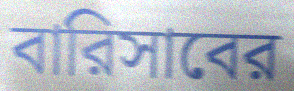
বারিসাবের